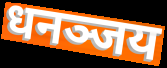
धनञ्जय